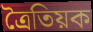
ত্ৰৈতিয়ক